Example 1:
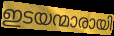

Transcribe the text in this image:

ഇടയന്മാരായി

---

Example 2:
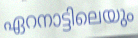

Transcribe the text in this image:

ഏറനാട്ടിലെയും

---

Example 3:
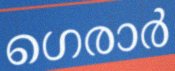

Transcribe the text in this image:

ഗെരാർ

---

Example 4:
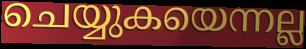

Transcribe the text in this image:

ചെയ്യുകയെന്നല്ല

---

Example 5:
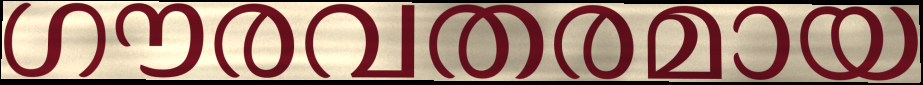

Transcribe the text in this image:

ഗൗരവതരമായ